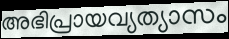
അഭിപ്രായവ്യത്യാസം